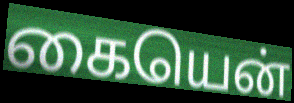
கையென்